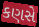
કણસે